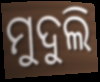
ମୁଦୁଲି